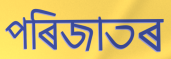
পৰিজাতৰ